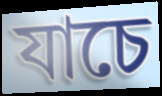
যাচে